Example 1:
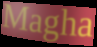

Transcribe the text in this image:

Magha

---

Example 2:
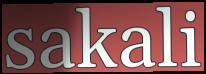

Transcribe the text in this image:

sakali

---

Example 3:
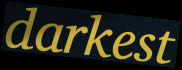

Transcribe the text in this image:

darkest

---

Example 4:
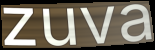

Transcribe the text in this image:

zuva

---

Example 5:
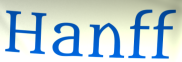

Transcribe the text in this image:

Hanff